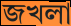
জখলা